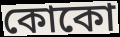
কোকো